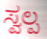
ಸ್ವಲ್ಪ